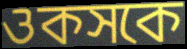
ওকসকে